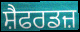
ਸ਼ੈਫਰਡਜ਼